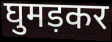
घुमड़कर